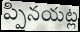
ప్పినయట్ల